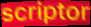
scriptor